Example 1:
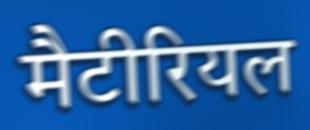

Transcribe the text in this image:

मैटीरियल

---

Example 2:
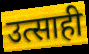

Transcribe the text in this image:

उत्साही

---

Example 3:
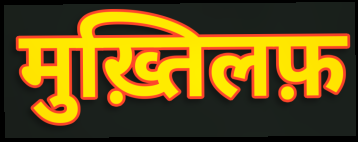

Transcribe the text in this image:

मुख़्तिलफ़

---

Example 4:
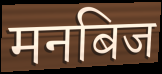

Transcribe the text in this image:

मनबिज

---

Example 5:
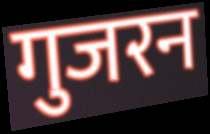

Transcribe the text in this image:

गुजरन